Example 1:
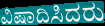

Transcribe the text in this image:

ವಿಷಾದಿಸಿದರು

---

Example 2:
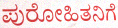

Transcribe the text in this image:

ಪುರೋಹಿತನಿಗೆ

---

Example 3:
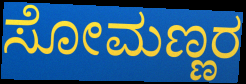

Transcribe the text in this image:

ಸೋಮಣ್ಣರ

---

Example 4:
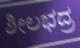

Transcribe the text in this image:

ಶೀಲಭದ್ರ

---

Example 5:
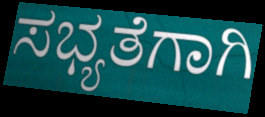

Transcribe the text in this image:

ಸಭ್ಯತೆಗಾಗಿ